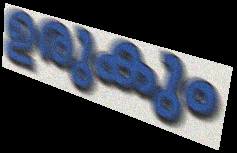
ഉരുകും